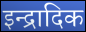
इन्द्रादिक